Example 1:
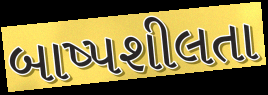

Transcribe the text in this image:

બાષ્પશીલતા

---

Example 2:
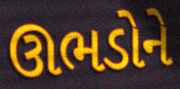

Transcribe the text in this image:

ઊભડોને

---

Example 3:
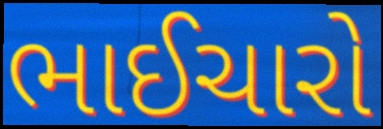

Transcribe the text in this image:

ભાઈચારો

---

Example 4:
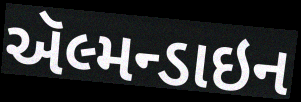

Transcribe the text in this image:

ઍલ્મન્ડાઇન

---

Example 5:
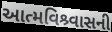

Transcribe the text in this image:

આત્મવિશ્ર્વાસની